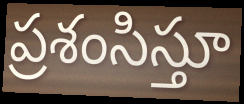
ప్రశంసిస్తూ